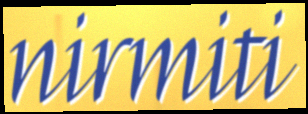
nirmiti